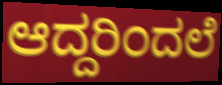
ಆದ್ದರಿಂದಲೆ